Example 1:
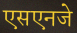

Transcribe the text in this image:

एसएनजे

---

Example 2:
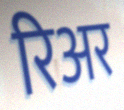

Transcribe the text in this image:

रिअर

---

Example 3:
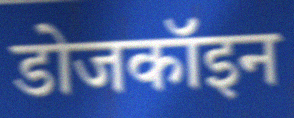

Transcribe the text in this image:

डोजकॉइन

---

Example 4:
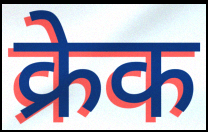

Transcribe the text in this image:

क्रेक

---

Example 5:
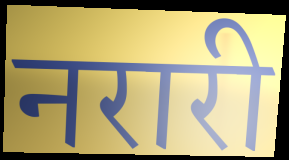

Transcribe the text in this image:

नरारी